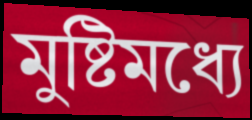
মুষ্টিমধ্যে